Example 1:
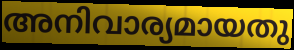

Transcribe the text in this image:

അനിവാര്യമായതു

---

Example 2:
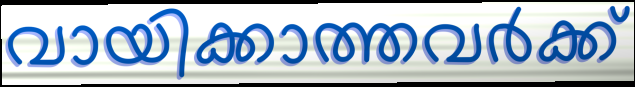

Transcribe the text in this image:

വായിക്കാത്തവർക്ക്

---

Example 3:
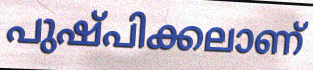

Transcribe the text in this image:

പുഷ്പിക്കലാണ്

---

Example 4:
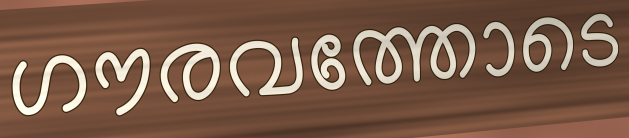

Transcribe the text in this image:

ഗൗരവത്തോടെ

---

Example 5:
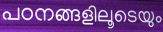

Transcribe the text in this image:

പഠനങ്ങളിലൂടെയും